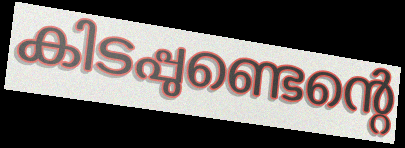
കിടപ്പുണ്ടെന്റെ